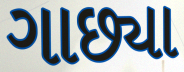
ગાછ્યા